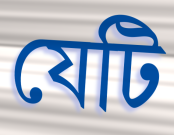
যেটি